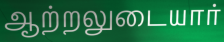
ஆற்றலுடையார்